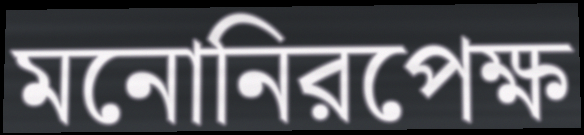
মনোনিরপেক্ষ